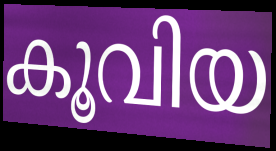
കൂവിയ